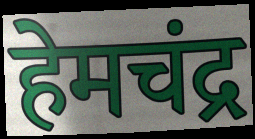
हेमचंद्र